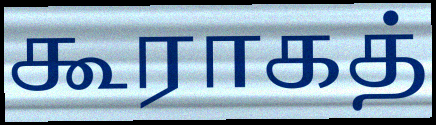
கூராகத்